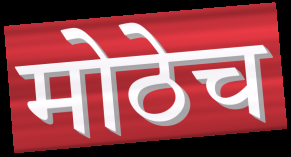
मोठेच